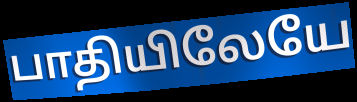
பாதியிலேயே